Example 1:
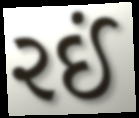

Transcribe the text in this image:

રઈં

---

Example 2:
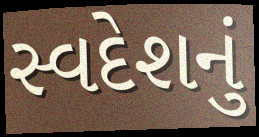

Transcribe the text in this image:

સ્વદેશનું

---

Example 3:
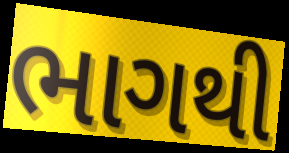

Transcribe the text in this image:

ભાગથી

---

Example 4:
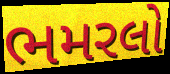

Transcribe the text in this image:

ભમરલો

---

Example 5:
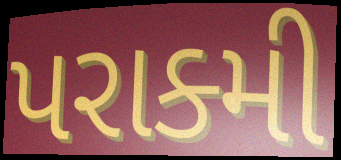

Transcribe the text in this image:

પરાક્મી